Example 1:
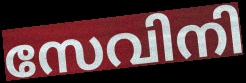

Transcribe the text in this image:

സേവിനി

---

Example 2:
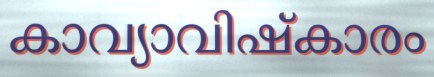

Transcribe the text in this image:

കാവ്യാവിഷ്കാരം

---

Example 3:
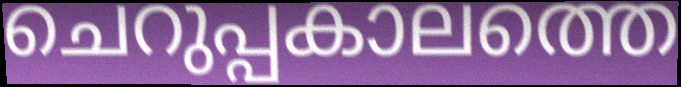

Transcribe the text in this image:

ചെറുപ്പകാലത്തെ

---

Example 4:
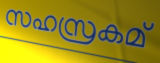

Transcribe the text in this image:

സഹസ്രകമ്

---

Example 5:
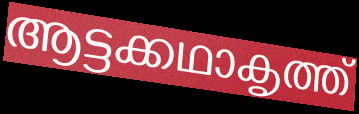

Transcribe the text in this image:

ആട്ടക്കഥാകൃത്ത്